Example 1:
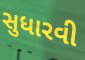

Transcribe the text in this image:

સુધારવી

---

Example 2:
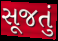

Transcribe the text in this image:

સૂજતું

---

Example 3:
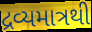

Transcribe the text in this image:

દ્રવ્યમાત્રથી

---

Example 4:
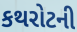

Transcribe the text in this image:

કથરોટની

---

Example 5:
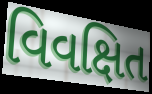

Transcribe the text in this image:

વિવક્ષિત